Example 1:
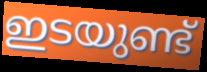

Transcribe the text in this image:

ഇടയുണ്ട്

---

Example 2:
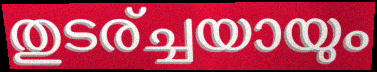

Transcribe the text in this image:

തുടര്ച്ചയായും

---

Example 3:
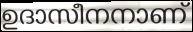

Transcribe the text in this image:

ഉദാസീനനാണ്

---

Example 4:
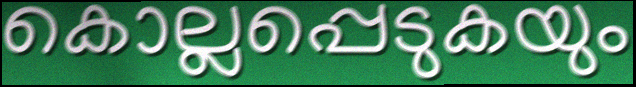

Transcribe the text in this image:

കൊല്ലപ്പെടുകയും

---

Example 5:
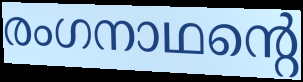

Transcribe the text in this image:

രംഗനാഥന്റെ